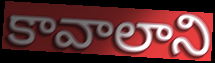
కావాలాని